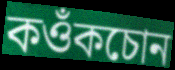
কওঁকচোন